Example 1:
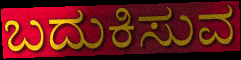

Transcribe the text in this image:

ಬದುಕಿಸುವ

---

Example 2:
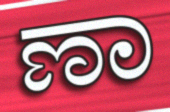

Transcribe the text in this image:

ಣಾ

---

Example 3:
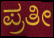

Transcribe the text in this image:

ಪ್ರತೀ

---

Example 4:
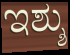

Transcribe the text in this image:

ಇಶ್ಶು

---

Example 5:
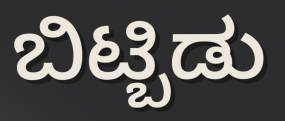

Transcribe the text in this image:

ಬಿಟ್ಬಿಡು